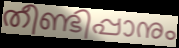
തീണ്ടിപ്പാനും